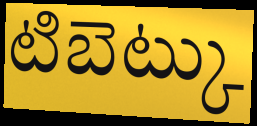
టిబెట్కు